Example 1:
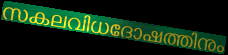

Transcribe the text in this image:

സകലവിധദോഷത്തിനും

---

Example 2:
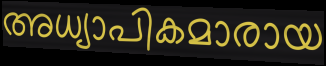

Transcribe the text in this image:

അധ്യാപികമാരായ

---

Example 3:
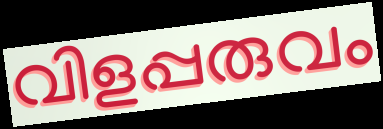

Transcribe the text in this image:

വിളപ്പരുവം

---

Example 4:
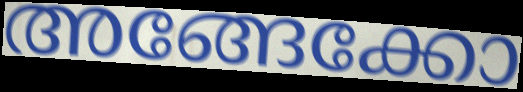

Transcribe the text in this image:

അങ്ങേക്കോ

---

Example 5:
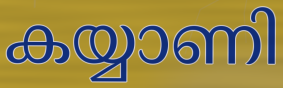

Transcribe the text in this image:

കയ്യാണി